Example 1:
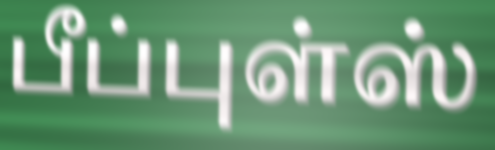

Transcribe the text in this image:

பீப்புள்ஸ்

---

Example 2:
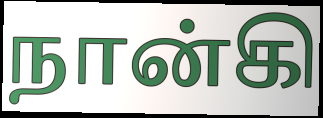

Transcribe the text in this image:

நான்கி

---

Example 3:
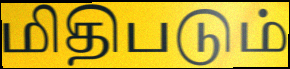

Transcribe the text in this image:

மிதிபடும்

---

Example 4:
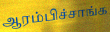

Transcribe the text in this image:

ஆரம்பிச்சாங்க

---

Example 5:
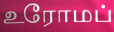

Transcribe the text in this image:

உரோமப்